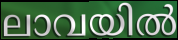
ലാവയിൽ